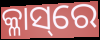
କ୍ଳାସ୍‌ରେ